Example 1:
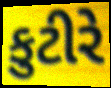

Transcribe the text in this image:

કુટીરે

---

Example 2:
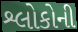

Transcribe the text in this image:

શ્લોકોની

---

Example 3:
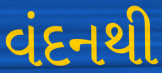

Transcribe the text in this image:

વંદનથી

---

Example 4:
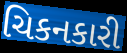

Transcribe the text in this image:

ચિકનકારી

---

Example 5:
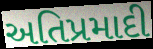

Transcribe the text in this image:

અતિપ્રમાદી